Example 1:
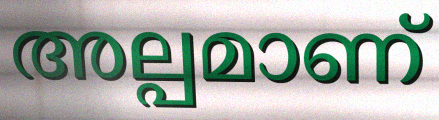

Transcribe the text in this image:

അല്പമാണ്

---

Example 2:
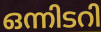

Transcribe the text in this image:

ഒന്നിടറി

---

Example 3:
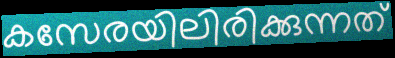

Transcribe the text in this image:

കസേരയിലിരിക്കുന്നത്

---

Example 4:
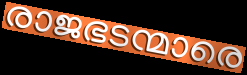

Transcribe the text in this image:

രാജഭടന്മാരെ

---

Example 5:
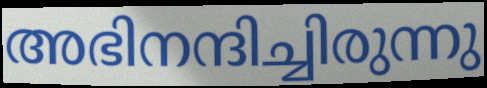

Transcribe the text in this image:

അഭിനന്ദിച്ചിരുന്നു